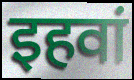
इहवां